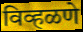
विव्हळणे